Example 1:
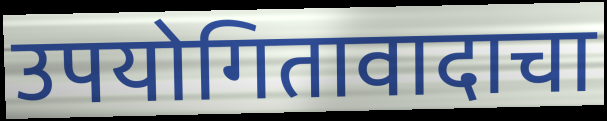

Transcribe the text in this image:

उपयोगितावादाचा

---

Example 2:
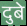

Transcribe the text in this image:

दुबे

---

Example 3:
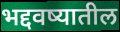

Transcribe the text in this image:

भद्दवष्यातील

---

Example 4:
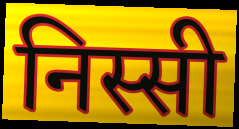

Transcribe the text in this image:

निस्सी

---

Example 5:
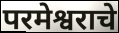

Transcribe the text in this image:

परमेश्वराचे